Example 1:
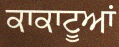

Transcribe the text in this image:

ਕਾਕਾਟੂਆਂ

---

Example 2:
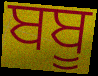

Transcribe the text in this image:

ਬਬੂ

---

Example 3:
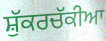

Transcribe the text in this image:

ਸ਼ੁੱਕਰਚੱਕੀਆ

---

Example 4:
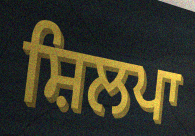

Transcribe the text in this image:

ਸ਼ਿਲਪਾ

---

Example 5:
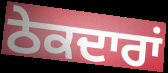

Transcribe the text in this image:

ਠੇਕਦਾਰਾਂ